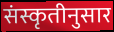
संस्कृतीनुसार